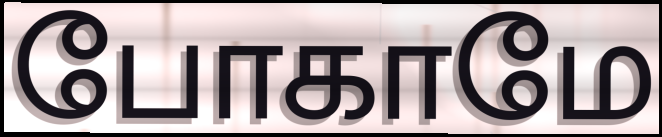
போகாமே